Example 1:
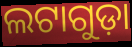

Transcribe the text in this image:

ଲଟାଗୁଡ଼ା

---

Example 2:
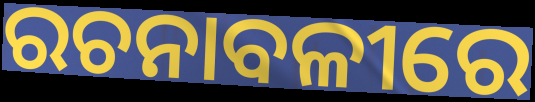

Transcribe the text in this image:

ରଚନାବଳୀରେ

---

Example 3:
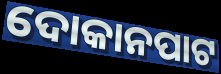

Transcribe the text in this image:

ଦୋକାନପାଟ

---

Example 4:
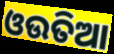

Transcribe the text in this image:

ଓଉତିଆ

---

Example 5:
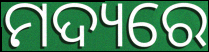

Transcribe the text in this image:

ମଦ୍ୟରେ